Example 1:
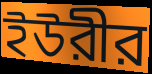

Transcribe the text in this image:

ইউরীর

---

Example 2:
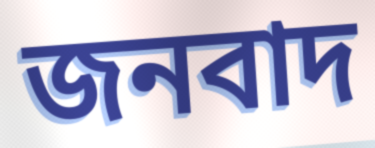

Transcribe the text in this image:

জনবাদ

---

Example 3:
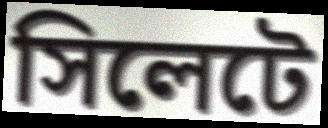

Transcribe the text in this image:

সিলেটে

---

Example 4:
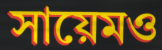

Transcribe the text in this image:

সায়েমও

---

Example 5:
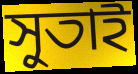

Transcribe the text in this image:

সুতাই